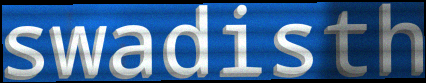
swadisth